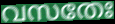
വസതേഃ